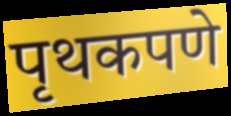
पृथकपणे